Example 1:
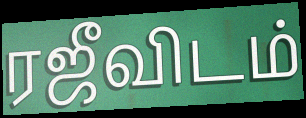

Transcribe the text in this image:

ரஜீவிடம்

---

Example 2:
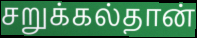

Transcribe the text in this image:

சறுக்கல்தான்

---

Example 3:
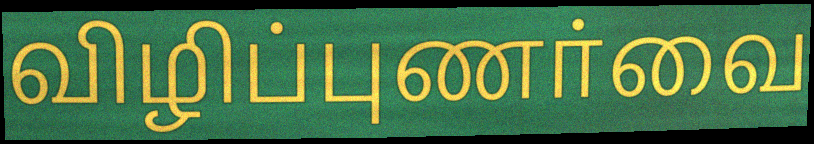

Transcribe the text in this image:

விழிப்புணர்வை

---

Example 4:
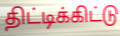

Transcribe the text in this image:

திட்டிக்கிட்டு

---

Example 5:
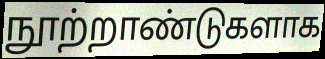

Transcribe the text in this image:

நூற்றாண்டுகளாக